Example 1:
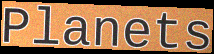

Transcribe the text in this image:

Planets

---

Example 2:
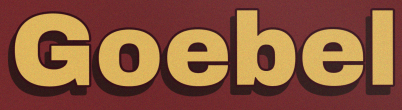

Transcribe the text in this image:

Goebel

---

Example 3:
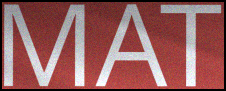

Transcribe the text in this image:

MAT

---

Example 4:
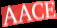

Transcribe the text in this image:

AACE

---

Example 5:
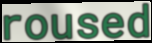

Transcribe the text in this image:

roused